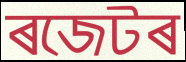
ৰজেটৰ